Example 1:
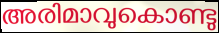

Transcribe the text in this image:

അരിമാവുകൊണ്ടു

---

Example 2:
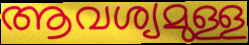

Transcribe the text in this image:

ആവശ്യമുള്ള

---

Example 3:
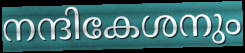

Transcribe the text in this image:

നന്ദികേശനും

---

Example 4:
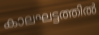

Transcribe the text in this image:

കാലഘട്ടത്തിൽ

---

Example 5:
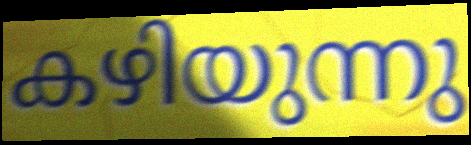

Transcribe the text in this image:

കഴിയുന്നു